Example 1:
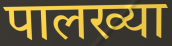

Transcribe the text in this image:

पालख्या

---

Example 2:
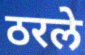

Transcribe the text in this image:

ठरले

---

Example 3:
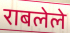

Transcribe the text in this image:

राबलेले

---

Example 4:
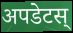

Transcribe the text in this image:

अपडेटस्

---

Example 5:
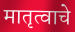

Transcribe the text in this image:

मातृत्वाचे